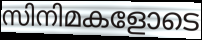
സിനിമകളോടെ